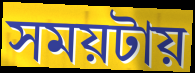
সময়টায়